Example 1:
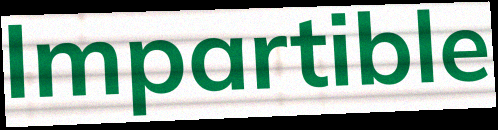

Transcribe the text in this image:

Impartible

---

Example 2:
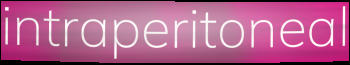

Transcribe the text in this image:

intraperitoneal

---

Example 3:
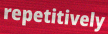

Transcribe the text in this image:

repetitively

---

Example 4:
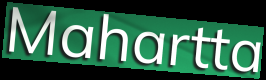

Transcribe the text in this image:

Mahartta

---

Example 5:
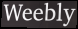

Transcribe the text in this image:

Weebly